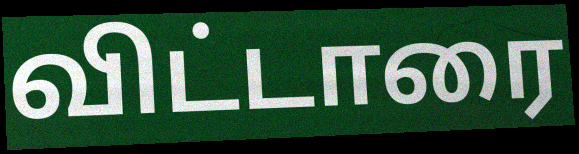
விட்டாரை